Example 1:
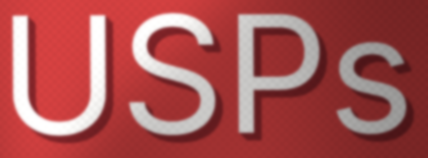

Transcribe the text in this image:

USPs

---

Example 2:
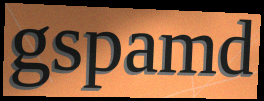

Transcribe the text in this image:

gspamd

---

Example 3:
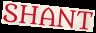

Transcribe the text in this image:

SHANT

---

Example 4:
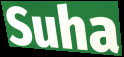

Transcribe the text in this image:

Suha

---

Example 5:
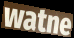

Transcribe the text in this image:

watne